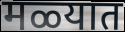
मळ्यात